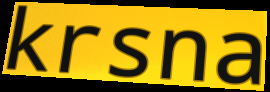
krsna